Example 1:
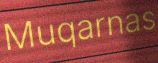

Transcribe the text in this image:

Muqarnas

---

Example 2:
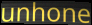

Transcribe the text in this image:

unhone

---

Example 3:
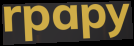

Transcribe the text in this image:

rpapy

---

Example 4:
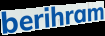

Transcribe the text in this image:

berihram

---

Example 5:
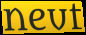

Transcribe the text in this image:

neut